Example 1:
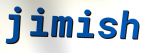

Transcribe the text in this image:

jimish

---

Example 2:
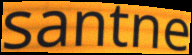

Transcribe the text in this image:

santne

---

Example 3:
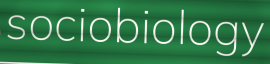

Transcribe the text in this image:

sociobiology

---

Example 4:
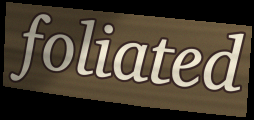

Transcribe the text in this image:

foliated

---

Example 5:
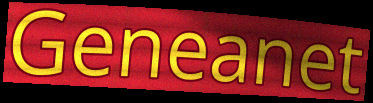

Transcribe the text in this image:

Geneanet